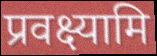
प्रवक्ष्यामि